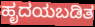
ಹೃದಯಬಡಿತ